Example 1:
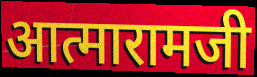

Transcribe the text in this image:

आत्मारामजी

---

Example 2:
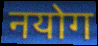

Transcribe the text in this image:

नयोग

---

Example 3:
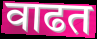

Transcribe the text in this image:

वाढत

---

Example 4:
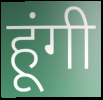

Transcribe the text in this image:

हूंगी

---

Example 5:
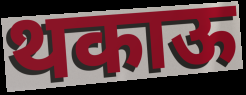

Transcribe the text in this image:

थकाऊ